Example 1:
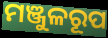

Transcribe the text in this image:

ମଞ୍ଜୁଳରୂପ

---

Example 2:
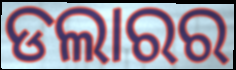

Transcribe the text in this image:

ଡଲାରର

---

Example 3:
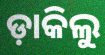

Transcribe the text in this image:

ଡ଼ାକିଲୁ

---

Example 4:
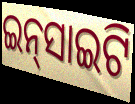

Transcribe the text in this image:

ଇନ୍‌ସାଇଟି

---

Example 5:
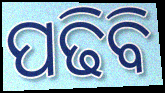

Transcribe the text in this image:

ପଢିବି